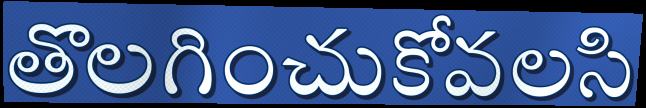
తొలగించుకోవలసి